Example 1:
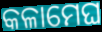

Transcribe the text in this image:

କଳାମେଘ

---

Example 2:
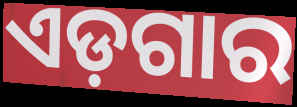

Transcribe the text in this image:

ଏଡ଼ଗାର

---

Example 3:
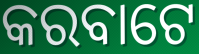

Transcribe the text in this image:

କରବାଟେ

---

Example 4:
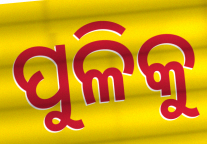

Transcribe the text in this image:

ପୁଳିକୁ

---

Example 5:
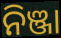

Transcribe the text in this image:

ନିଞ୍ଜା